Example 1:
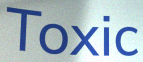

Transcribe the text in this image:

Toxic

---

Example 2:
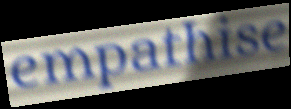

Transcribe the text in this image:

empathise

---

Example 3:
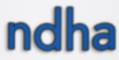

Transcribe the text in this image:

ndha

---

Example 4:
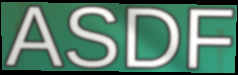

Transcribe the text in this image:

ASDF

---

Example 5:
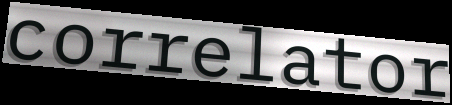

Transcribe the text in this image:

correlator